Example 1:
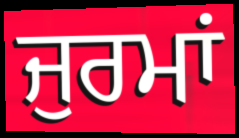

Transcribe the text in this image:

ਜੁਰਮਾਂ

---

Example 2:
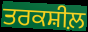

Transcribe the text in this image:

ਤਰਕਸ਼ੀਲ਼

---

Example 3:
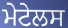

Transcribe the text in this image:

ਮੇਟੇਲਸ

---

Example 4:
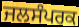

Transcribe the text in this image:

ਜਲਸੰਪਰਕ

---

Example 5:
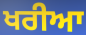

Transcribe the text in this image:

ਖਰੀਆ